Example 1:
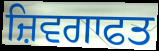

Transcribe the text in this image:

ਜ਼ਿਵਗਾਫਤ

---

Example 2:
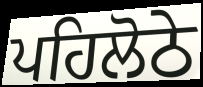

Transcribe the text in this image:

ਪਹਿਲੋਠੇ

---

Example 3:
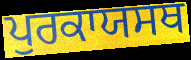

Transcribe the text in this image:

ਪੁਰਕਾਯਸਥ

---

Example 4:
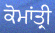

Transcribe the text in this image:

ਕੋਮਾਂਤ੍ਰੀ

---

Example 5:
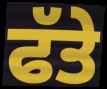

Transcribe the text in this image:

ਫੱਤੇ